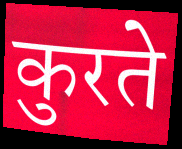
कुरते